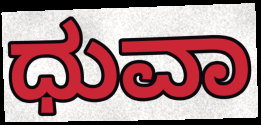
ಧುವಾ